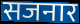
सजनार